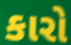
કારો